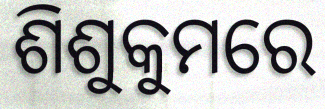
ଶିଶୁକୁମରେ